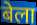
बेला